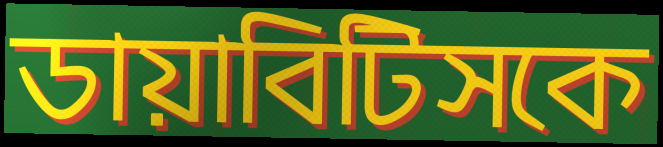
ডায়াবিটিসকে